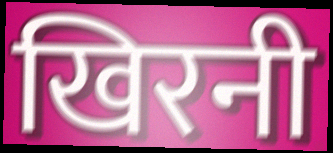
खिरनी